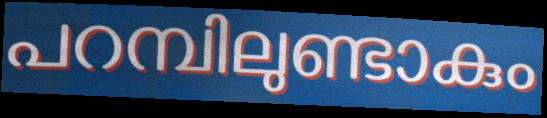
പറമ്പിലുണ്ടാകും